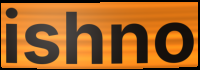
ishno